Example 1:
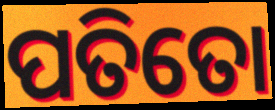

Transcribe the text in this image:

ପତିତୋ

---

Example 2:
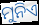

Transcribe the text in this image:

ମୁନିଏ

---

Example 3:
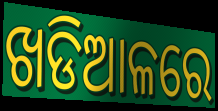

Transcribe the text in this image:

ଖଡିଆଳରେ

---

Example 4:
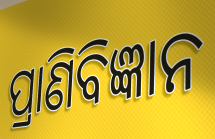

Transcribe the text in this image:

ପ୍ରାଣିବିଜ୍ଞାନ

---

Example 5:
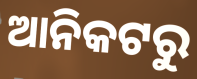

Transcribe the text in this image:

ଆନିକଟରୁ